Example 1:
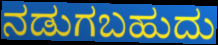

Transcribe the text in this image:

ನಡುಗಬಹುದು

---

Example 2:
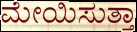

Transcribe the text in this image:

ಮೇಯಿಸುತ್ತಾ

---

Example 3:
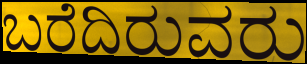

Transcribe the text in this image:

ಬರೆದಿರುವರು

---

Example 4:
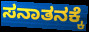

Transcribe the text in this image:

ಸನಾತನಕ್ಕೆ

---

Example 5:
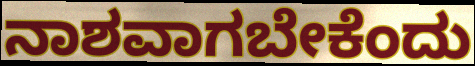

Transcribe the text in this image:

ನಾಶವಾಗಬೇಕೆಂದು